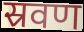
स्रवण